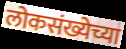
लोकसंख्येच्या